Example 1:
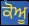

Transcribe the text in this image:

ਕੋਅੂ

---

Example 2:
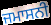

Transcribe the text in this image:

ਜਮਾਸਨੀ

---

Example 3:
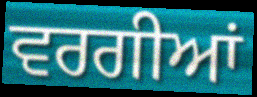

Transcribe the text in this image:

ਵਰਗੀਆਂ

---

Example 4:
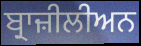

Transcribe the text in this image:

ਬ੍ਰਾਜ਼ੀਲੀਅਨ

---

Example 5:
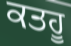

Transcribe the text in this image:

ਕਤਹੂ